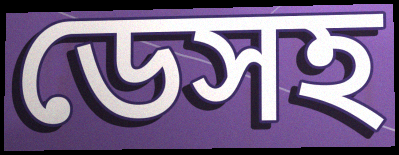
ডেসহ